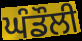
ਘੰਡੌਲੀ